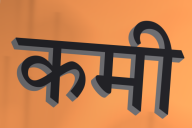
कमी